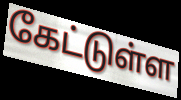
கேட்டுள்ள